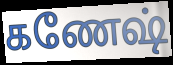
கணேஷ்